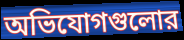
অভিযোগগুলোর